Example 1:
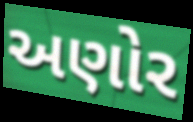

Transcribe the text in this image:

અણોર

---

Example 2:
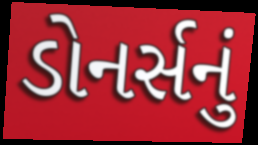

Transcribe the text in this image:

ડોનર્સનું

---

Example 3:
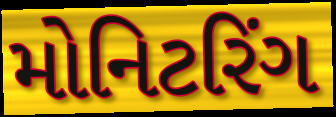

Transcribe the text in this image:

મોનિટરિંગ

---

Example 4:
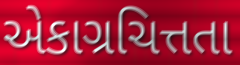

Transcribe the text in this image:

એકાગ્રચિત્તતા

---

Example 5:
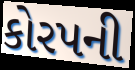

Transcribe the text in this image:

કોરપની